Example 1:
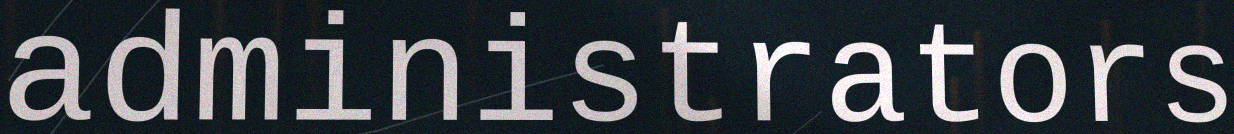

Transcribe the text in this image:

administrators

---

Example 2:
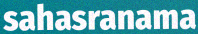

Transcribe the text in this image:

sahasranama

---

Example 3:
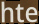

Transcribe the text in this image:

hte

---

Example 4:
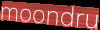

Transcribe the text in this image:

moondru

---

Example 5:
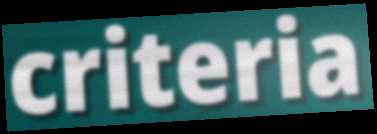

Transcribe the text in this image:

criteria